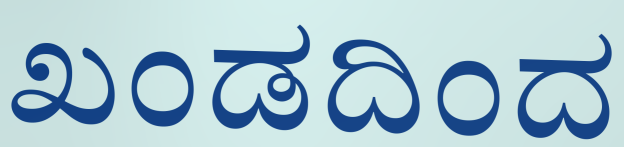
ಖಂಡದಿಂದ